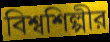
বিশ্বশিল্পীর